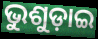
ଭୁଶୁଡ଼ାଇ